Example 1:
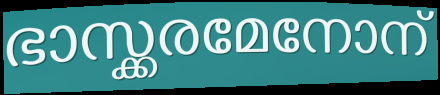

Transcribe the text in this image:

ഭാസ്ക്കരമേനോന്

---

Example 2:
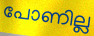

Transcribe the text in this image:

പോണില്ല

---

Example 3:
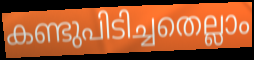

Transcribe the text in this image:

കണ്ടുപിടിച്ചതെല്ലാം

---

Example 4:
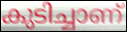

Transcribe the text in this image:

കുടിച്ചാണ്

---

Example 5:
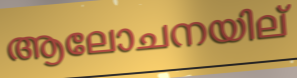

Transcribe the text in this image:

ആലോചനയില്